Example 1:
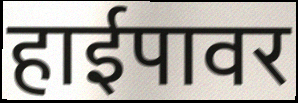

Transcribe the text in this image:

हाईपावर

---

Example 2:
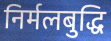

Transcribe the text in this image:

निर्मलबुद्धि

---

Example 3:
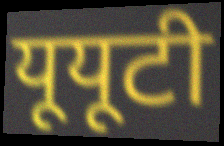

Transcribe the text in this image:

यूयूटी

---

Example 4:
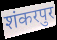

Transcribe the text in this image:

शंकरपुर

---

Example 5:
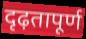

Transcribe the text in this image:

दृढ़तापूर्ण